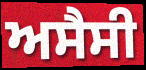
ਅਸੈਸੀ